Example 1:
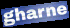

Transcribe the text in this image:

gharne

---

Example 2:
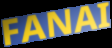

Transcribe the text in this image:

FANAI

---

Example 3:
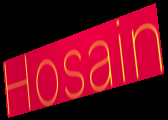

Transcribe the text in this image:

Hosain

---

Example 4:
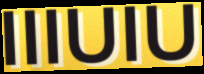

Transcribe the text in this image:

IIIUIU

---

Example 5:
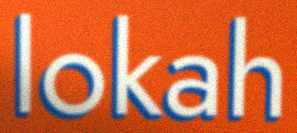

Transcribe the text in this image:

lokah